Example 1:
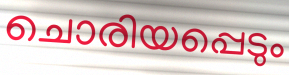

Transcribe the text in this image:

ചൊരിയപ്പെടും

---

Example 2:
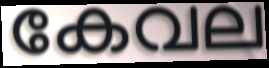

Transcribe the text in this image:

കേവല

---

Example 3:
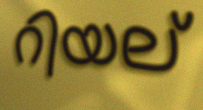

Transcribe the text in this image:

റിയല്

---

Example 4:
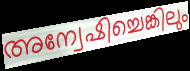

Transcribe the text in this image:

അന്വേഷിച്ചെങ്കിലും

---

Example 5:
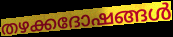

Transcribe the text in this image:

തഴക്കദോഷങ്ങൾ